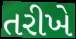
તરીખે